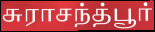
சுராசந்த்பூர்